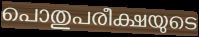
പൊതുപരീക്ഷയുടെ